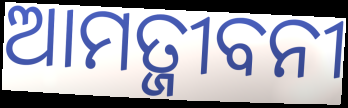
ଆମତ୍ଜୀବନୀ